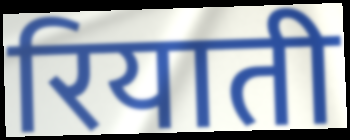
रियाती